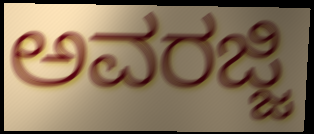
ಅವರಜ್ಜಿ